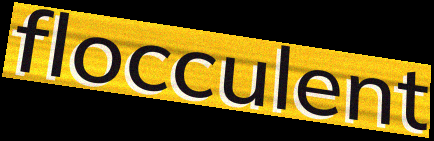
flocculent